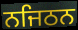
ਨਜਿਠਨ